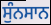
ਸੁੰਨਸਾਨ